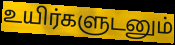
உயிர்களுடனும்